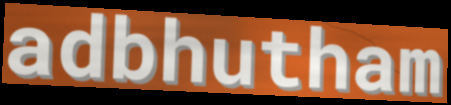
adbhutham